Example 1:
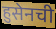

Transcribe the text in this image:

हुसेनची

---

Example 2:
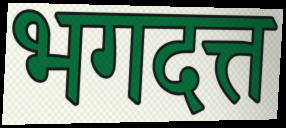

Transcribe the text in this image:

भगदत्त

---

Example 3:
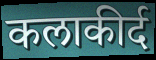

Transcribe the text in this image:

कलाकीर्द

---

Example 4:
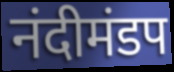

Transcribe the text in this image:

नंदीमंडप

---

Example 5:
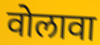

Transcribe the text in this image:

वोलावा